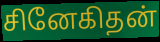
சினேகிதன்